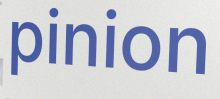
pinion